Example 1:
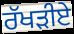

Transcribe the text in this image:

ਰੱਖੜੀਏ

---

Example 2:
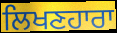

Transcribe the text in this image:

ਲਿਖਣਹਾਰਾ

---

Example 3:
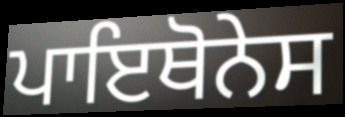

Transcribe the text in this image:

ਪਾਇਥੋਨੇਸ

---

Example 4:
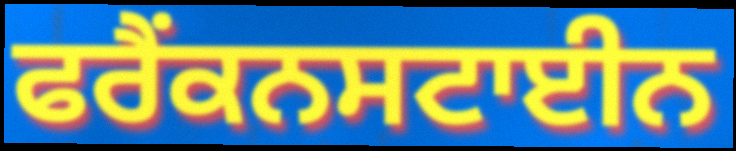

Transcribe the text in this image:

ਫਰੈਂਕਨਸਟਾਈਨ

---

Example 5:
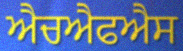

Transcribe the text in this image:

ਐਚਐਫਐਸ